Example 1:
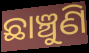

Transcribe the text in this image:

ଛାଞ୍ଚୁଣି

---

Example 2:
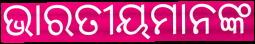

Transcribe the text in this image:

ଭାରତୀୟମାନଙ୍କ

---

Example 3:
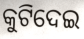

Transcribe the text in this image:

କୁଟିଦେଇ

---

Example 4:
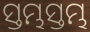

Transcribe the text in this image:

ସ୍ତମ୍ଭସ୍ତମ୍ଭ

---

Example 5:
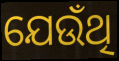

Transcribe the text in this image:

ଯେଉଁଥି